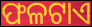
ଫଳଟାଏ